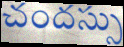
చందస్సు